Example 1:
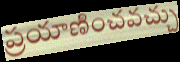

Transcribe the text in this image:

ప్రయాణించవచ్చు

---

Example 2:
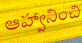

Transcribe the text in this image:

ఆహ్వానించి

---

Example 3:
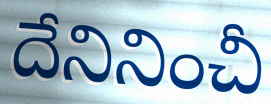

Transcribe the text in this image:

దేనినించీ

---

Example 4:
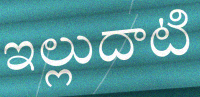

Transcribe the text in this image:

ఇల్లుదాటి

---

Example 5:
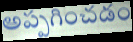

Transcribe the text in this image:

అప్పగించడం